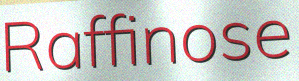
Raffinose